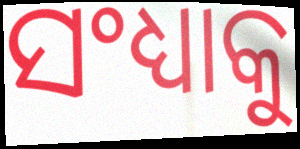
ସଂଧ୍ୟାକୁ